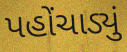
પહોંચાડ્યું